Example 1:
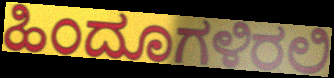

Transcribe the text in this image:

ಹಿಂದೂಗಳಿರಲಿ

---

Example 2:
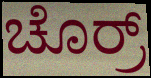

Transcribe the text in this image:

ಚೊರ್ರ್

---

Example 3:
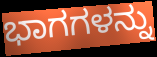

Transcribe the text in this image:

ಭಾಗಗಳನ್ನು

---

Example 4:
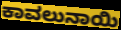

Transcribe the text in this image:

ಕಾವಲುನಾಯಿ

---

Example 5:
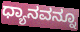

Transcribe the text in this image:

ಧ್ಯಾನವನ್ನೂ